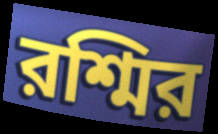
রশ্মির